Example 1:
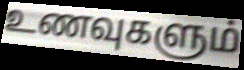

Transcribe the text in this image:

உணவுகளும்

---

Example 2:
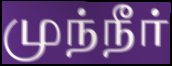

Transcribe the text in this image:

முந்நீர்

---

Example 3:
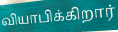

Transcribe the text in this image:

வியாபிக்கிறார்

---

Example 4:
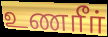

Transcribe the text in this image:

உணரீர்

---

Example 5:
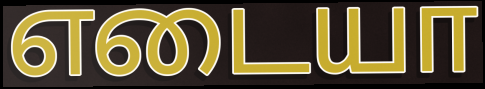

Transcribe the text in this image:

எடையா